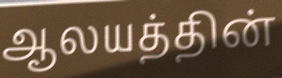
ஆலயத்தின்